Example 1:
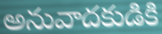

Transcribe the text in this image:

అనువాదకుడికి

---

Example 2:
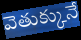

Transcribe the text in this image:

వెతుక్కునే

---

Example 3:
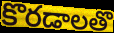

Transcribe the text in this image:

కొరడాలతొ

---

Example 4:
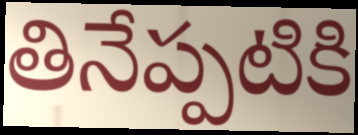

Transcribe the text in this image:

తినేప్పటికి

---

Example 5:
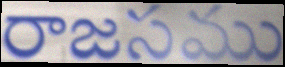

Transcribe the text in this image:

రాజసము